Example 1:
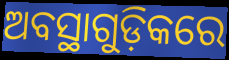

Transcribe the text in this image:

ଅବସ୍ଥାଗୁଡ଼ିକରେ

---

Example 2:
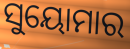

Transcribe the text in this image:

ସୁୟୋମାର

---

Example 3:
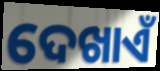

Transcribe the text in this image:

ଦେଖାଏଁ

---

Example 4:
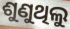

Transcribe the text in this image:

ଶୁଣୁଥିଲୁ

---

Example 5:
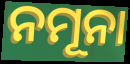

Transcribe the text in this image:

ନମୂନା